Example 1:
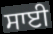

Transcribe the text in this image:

ਸਾਈ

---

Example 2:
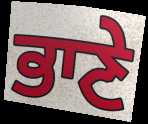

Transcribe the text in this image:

ਭਾਣੇ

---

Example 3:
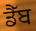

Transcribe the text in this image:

ਡੈੱਬ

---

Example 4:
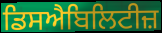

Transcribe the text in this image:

ਡਿਸਐਬਿਲਿਟੀਜ਼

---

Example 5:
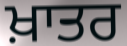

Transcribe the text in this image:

ਖ਼ਾਤਰ